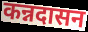
कन्नदासन